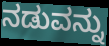
ನಡುವನ್ನು